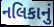
નલિકાનું